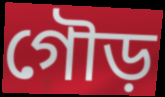
গৌড়